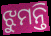
ଝୁମନ୍ତି